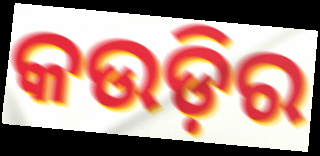
କଉଡ଼ିର